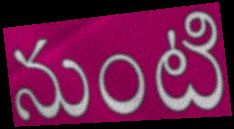
నుంటి